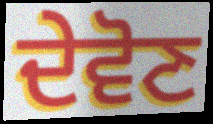
ਦੇਵੋਣ